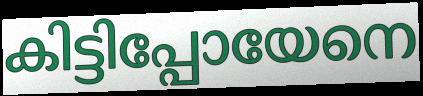
കിട്ടിപ്പോയേനെ